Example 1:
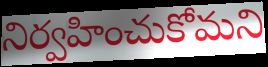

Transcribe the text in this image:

నిర్వహించుకోమని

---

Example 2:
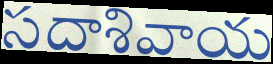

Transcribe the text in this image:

సదాశివాయ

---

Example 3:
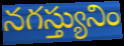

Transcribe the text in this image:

నగస్త్యునిం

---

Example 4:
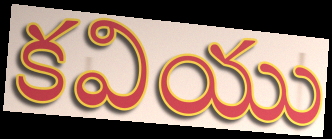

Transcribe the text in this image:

కవియు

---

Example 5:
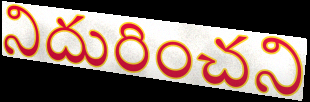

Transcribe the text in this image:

నిదురించని